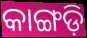
କାଙ୍ଗଡ଼ି